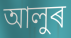
আলুৰ